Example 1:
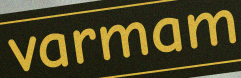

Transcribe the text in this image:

varmam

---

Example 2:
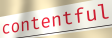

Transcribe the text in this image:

contentful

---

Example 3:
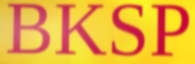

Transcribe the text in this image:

BKSP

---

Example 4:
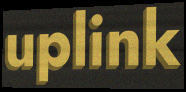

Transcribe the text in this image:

uplink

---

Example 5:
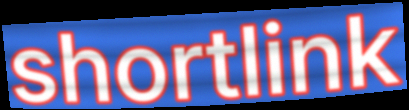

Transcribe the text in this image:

shortlink